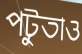
পটুতাও